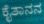
ಕೈತಾನನ